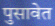
पुसावेत